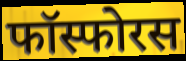
फॉस्फोरस